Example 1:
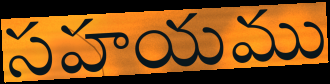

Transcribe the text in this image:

సహయము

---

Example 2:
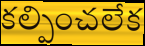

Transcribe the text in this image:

కల్పించలేక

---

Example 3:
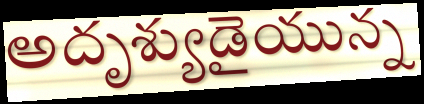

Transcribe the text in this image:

అదృశ్యుడైయున్న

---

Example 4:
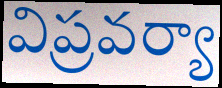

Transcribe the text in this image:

విప్రవర్యా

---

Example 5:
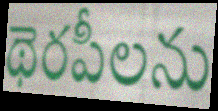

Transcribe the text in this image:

థెరపీలను